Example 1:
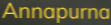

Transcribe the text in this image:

Annapurna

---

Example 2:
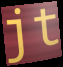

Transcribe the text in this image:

jt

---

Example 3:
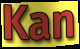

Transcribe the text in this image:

Kan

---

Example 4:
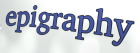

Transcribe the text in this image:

epigraphy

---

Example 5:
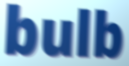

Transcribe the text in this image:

bulb